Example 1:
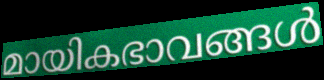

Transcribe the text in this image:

മായികഭാവങ്ങൾ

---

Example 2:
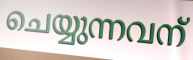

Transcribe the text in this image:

ചെയ്യുന്നവന്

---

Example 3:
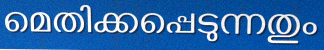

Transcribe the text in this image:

മെതിക്കപ്പെടുന്നതും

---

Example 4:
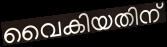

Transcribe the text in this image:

വൈകിയതിന്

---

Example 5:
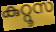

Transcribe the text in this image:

കുറ്റൂസ